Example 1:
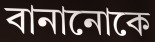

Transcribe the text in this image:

বানানোকে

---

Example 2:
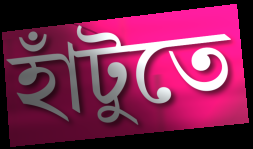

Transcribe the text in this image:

হাঁটুতে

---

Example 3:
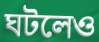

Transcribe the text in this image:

ঘটলেও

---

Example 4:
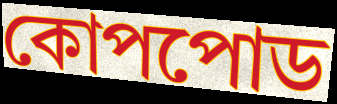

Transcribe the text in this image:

কোপপোড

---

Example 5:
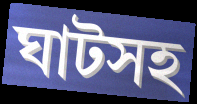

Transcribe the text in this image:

ঘাটসহ